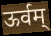
ऊर्वम्